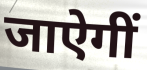
जाऐगीं